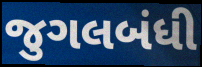
જુગલબંધી